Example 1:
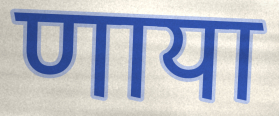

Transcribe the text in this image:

णाया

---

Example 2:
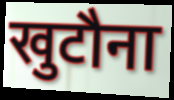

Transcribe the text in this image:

खुटौना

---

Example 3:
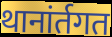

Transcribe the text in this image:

थानांर्तगत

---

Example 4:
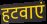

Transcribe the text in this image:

हटवाएं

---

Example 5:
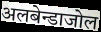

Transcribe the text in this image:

अलबेन्डाजोल